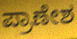
ಪ್ರಾಣೇಶ